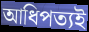
আধিপত্যই